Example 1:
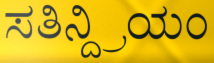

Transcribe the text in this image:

ಸತಿನ್ದ್ರಿಯಂ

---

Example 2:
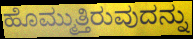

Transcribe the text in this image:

ಹೊಮ್ಮುತ್ತಿರುವುದನ್ನು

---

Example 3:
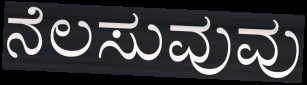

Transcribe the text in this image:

ನೆಲಸುವುವು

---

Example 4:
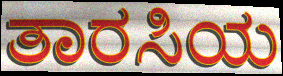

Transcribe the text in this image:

ತಾರಸಿಯ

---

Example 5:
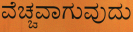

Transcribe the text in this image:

ವೆಚ್ಚವಾಗುವುದು